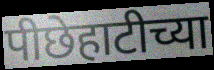
पीछेहाटीच्या